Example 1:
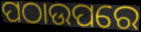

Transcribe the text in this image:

ପଠାଉପରେ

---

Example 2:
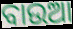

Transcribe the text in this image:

ବାଉଆ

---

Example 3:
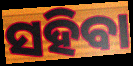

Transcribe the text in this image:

ସହିବା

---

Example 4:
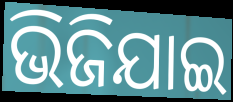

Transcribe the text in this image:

ଭିଜିଯାଇ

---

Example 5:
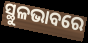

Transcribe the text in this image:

ସ୍ଥୁଳଭାବରେ